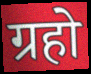
ग्रहो